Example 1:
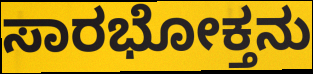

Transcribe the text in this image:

ಸಾರಭೋಕ್ತನು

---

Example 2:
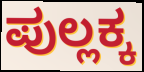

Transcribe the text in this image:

ಪುಲ್ಲಕ್ಕ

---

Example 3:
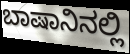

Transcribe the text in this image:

ಬಾಷಾನಿನಲ್ಲಿ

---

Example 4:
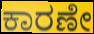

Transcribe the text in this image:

ಕಾರಣೇ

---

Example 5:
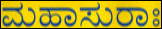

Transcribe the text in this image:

ಮಹಾಸುರಾಃ